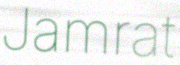
Jamrat